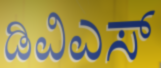
ಡಿವಿಎಸ್